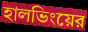
হালভিংয়ের